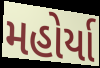
મહોર્યા